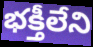
భక్తీలేని